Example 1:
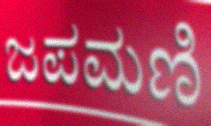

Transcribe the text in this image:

ಜಪಮಣಿ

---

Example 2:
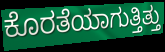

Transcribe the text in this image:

ಕೊರತೆಯಾಗುತ್ತಿತ್ತು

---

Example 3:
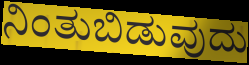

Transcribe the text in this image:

ನಿಂತುಬಿಡುವುದು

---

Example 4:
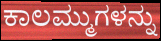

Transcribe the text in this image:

ಕಾಲಮ್ಮುಗಳನ್ನು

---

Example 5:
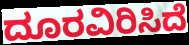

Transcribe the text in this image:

ದೂರವಿರಿಸಿದೆ